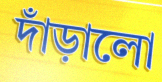
দাঁড়ালো